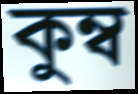
কুম্ব